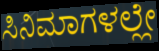
ಸಿನಿಮಾಗಳಲ್ಲೇ